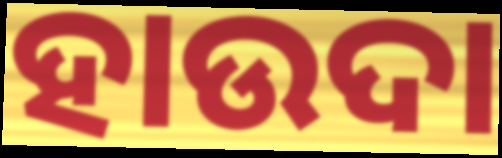
ହାଉଦା